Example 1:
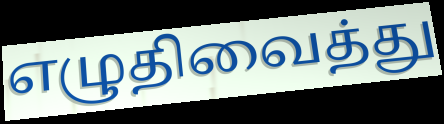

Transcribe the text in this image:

எழுதிவைத்து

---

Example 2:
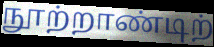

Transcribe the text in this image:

நூற்றாண்டிற்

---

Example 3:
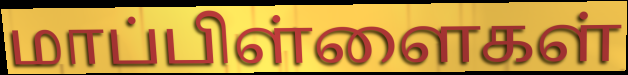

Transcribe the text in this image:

மாப்பிள்ளைகள்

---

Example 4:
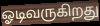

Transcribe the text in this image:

ஓடிவருகிறது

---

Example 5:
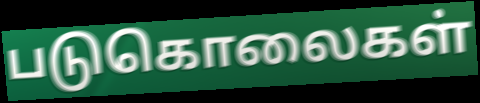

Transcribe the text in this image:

படுகொலைகள்